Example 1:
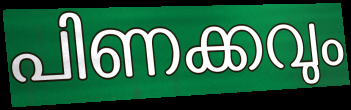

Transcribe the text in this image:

പിണക്കവും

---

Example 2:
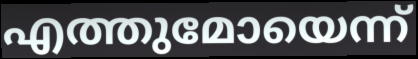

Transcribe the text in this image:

എത്തുമോയെന്ന്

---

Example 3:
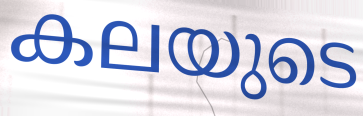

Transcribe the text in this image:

കലയുടെ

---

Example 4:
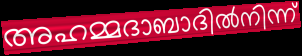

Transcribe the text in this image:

അഹമ്മദാബാദിൽനിന്ന്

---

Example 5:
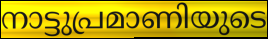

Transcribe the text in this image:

നാട്ടുപ്രമാണിയുടെ